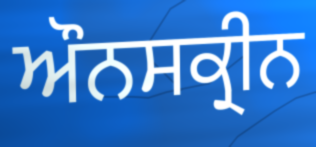
ਔਨਸਕ੍ਰੀਨ